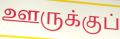
ஊருக்குப்